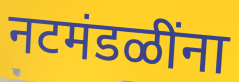
नटमंडळींना